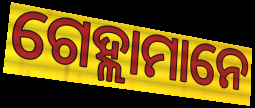
ଗେହ୍ଲାମାନେ